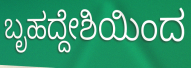
ಬೃಹದ್ದೇಶಿಯಿಂದ